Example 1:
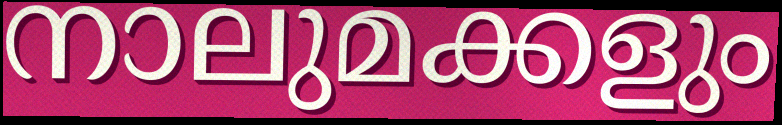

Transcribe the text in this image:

നാലുമക്കളും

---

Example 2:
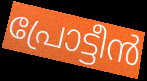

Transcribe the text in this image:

പ്രോട്ടീൻ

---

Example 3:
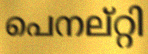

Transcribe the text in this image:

പെനല്റ്റി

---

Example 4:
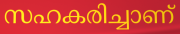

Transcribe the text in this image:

സഹകരിച്ചാണ്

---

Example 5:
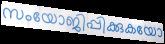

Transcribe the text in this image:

സംയോജിപ്പിക്കുകയോ